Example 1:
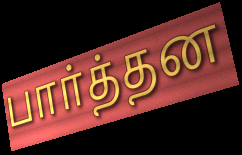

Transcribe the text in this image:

பார்த்தன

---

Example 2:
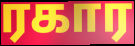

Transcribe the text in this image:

ரகார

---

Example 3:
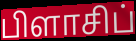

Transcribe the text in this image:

பிளாசிப்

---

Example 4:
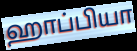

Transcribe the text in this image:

ஹாப்பியா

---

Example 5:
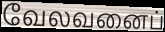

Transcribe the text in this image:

வேலவனைப்